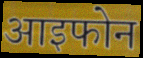
आइफोन